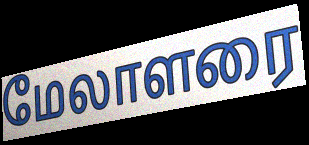
மேலாளரை